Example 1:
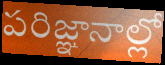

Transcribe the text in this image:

పరిజ్ఞానాల్లో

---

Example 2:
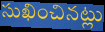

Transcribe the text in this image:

సుఖించినట్లు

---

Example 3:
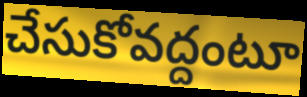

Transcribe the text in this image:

చేసుకోవద్దంటూ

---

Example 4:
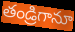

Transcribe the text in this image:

తండ్రిగానూ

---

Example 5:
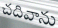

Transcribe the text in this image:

చదివాను